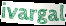
ivargal